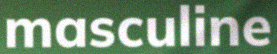
masculine